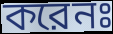
করেনঃ